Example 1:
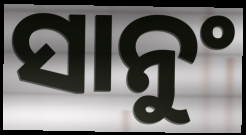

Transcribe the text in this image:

ସାନୁଂ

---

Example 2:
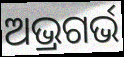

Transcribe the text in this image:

ଅଭ୍ରଗର୍ଭ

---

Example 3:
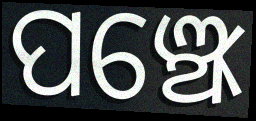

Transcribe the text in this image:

ପଞ୍ଝେ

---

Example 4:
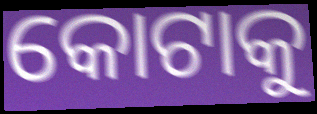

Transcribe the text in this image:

କୋଟାକୁ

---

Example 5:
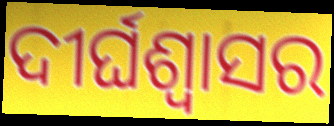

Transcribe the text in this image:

ଦୀର୍ଘଶ୍ବାସର